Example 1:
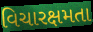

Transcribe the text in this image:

વિચારક્ષમતા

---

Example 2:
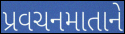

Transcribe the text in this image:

પ્રવચનમાતાને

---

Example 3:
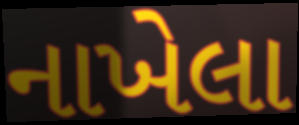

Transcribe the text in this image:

નાખેલા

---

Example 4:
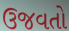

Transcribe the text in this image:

ઉજવતો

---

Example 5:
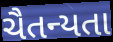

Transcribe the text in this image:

ચૈતન્યતા